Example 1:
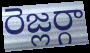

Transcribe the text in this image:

రెజ్లర్గా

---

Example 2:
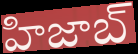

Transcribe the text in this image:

హిజాబ్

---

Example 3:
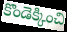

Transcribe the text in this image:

కొండెక్కించి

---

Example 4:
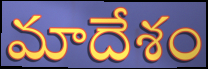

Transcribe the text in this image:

మాదేశం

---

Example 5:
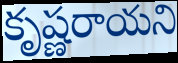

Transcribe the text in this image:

కృష్ణరాయని